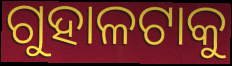
ଗୁହାଳଟାକୁ